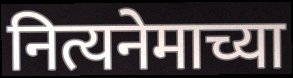
नित्यनेमाच्या